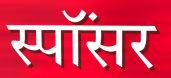
स्पॉंसर